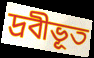
দ্রবীভূত